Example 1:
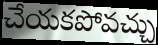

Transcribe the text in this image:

చేయకపోవచ్చు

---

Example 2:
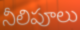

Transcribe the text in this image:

నీలిపూలు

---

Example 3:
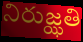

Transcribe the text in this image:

నిరుజ్ఝతి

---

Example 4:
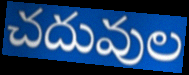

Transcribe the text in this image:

చదువుల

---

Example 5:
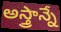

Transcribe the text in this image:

అస్త్రాన్నే